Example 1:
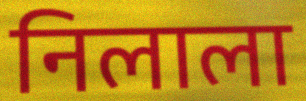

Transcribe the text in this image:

निलाला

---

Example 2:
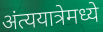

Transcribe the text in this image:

अंत्ययात्रेमध्ये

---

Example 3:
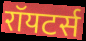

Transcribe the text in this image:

रॉयटर्स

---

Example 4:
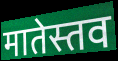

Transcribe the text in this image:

मातेस्तव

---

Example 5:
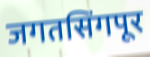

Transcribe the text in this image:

जगतसिंगपूर